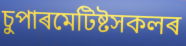
চুপাৰমেটিষ্টসকলৰ